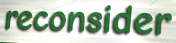
reconsider